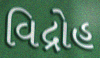
વિદ્રોહ